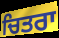
ਚਿਤਰਾ